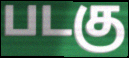
படகு